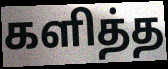
களித்த